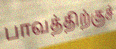
பாவத்திற்குச்